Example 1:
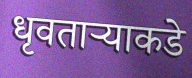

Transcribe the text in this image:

धृवतार्‍याकडे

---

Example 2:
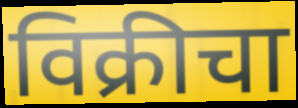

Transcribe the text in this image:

विक्रीचा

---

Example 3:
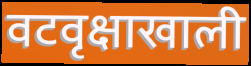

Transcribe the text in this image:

वटवृक्षाखाली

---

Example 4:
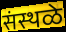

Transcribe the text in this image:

संस्थळे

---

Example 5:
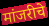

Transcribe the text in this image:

मांजरीचे